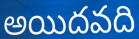
అయిదవది